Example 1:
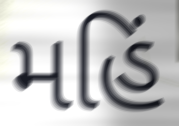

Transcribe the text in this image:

મહિં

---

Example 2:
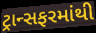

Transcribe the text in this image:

ટ્રાન્સફરમાંથી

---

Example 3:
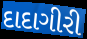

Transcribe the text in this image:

દાદાગીરી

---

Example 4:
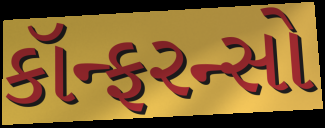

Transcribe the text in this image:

કૉન્ફરન્સો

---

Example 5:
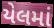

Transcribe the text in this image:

યેલમાં